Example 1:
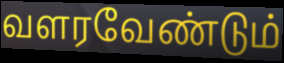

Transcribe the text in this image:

வளரவேண்டும்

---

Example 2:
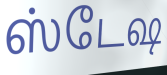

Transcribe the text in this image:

ஸ்டேஷ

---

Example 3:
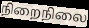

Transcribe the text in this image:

நிறைநிலை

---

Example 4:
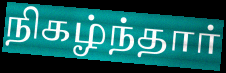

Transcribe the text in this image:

நிகழ்ந்தார்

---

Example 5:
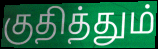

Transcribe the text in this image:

குதித்தும்